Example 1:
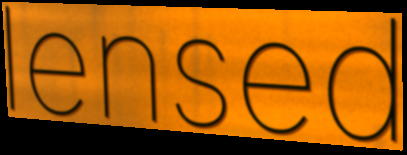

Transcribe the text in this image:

lensed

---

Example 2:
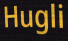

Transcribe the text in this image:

Hugli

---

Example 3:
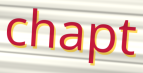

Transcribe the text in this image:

chapt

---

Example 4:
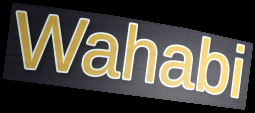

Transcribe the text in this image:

Wahabi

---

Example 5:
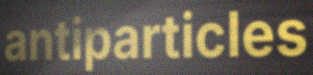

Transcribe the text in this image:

antiparticles